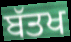
ਬੱਤਖ